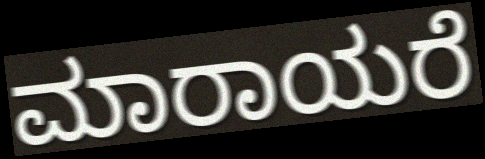
ಮಾರಾಯರೆ